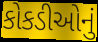
કોકડીઓનું